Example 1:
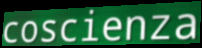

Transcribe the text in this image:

coscienza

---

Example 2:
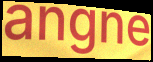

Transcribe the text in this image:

angne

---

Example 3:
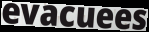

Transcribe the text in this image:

evacuees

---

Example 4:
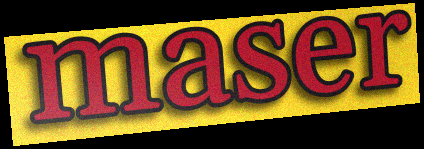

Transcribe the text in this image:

maser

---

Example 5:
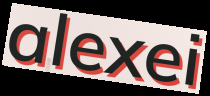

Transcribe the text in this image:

alexei